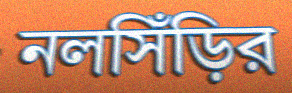
নলসিঁড়ির